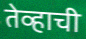
तेव्हाची